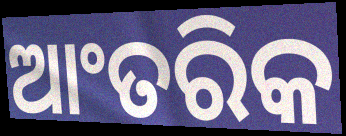
ଆଂତରିକ